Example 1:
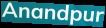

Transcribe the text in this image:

Anandpur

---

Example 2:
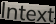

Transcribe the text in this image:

Intext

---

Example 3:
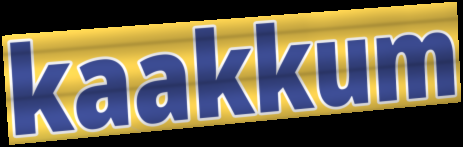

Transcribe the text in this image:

kaakkum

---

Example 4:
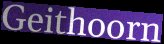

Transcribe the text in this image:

Geithoorn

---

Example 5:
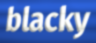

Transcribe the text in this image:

blacky